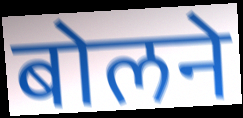
बोलने